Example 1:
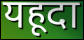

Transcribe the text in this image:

यहूदा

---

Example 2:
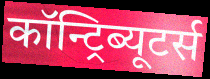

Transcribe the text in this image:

कॉन्ट्रिब्यूटर्स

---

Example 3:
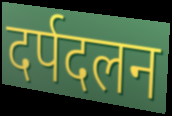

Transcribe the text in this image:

दर्पदलन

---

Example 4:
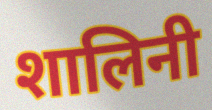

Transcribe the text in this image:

शालिनी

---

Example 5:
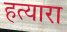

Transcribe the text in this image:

हत्यारा